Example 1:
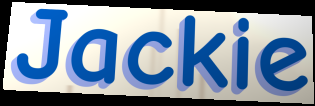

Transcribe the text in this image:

Jackie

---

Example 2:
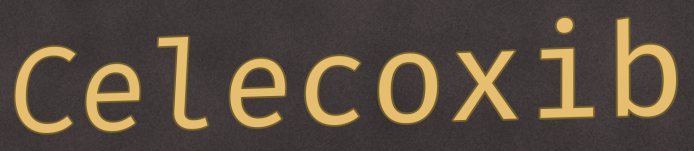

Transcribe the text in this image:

Celecoxib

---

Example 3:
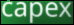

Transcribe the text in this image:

capex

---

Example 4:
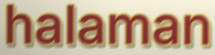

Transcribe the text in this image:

halaman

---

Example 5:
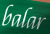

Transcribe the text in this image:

balar